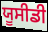
ਯੂਸੀਡੀ